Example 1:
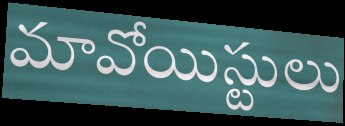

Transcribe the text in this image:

మావోయిస్టులు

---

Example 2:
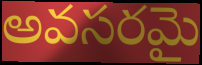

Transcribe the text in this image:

అవసరమై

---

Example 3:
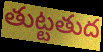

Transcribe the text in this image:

తుట్టతుద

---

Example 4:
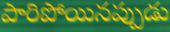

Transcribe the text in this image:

పారిపోయినప్పుడు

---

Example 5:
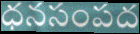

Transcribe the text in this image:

ధనసంపద